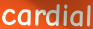
cardial